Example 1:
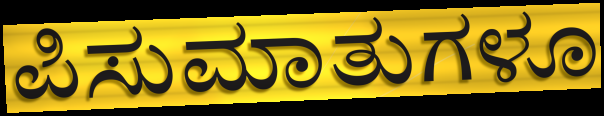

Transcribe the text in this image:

ಪಿಸುಮಾತುಗಳೂ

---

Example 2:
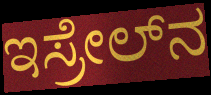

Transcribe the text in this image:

ಇಸ್ರೇಲ್‍ನ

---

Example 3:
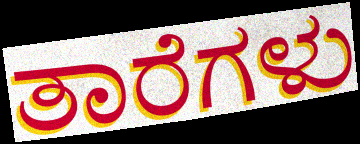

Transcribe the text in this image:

ತಾರೆಗಳು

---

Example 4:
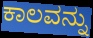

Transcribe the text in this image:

ಕಾಲವನ್ನು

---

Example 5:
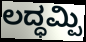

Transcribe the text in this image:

ಲದ್ಧಮ್ಪಿ